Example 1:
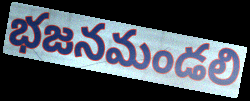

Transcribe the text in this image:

భజనమండలి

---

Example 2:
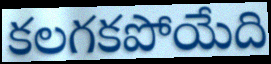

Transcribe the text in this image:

కలగకపోయేది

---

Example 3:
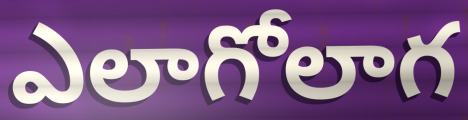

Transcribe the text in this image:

ఎలాగోలాగ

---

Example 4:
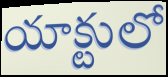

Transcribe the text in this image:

యాక్టులో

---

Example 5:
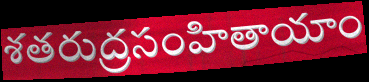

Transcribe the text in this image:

శతరుద్రసంహితాయాం